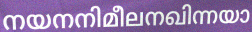
നയനനിമീലനഖിന്നയാ